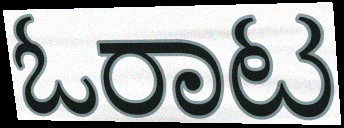
ಓರಾಟ